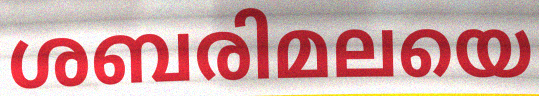
ശബരിമലയെ